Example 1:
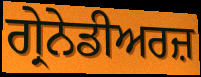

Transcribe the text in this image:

ਗ੍ਰੇਨੇਡੀਅਰਜ਼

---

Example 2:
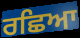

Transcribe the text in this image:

ਰਛਿਆ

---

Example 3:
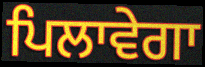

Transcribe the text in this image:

ਪਿਲਾਵੇਗਾ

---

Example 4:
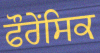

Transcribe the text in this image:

ਫੌਰੇਂਸਿਕ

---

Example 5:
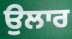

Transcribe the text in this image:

ਉਲਾਰ